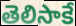
తెలిసాకే